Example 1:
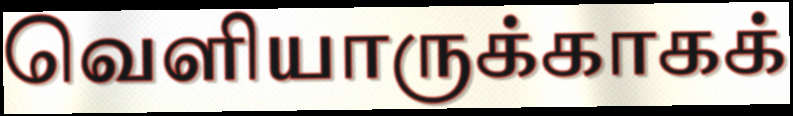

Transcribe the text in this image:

வெளியாருக்காகக்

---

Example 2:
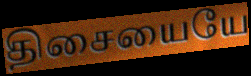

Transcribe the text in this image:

திசையையே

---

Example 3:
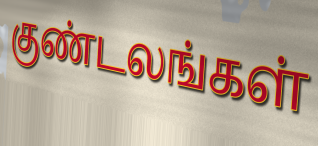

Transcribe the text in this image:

குண்டலங்கள்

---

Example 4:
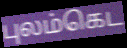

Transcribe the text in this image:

புலம்கெட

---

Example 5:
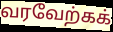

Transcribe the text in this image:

வரவேற்கக்